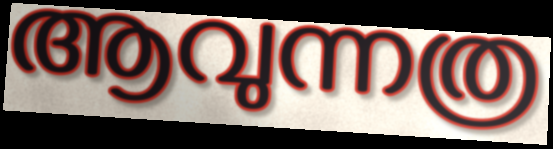
ആവുന്നത്ര